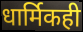
धार्मिकही